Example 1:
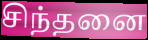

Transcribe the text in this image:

சிந்தனை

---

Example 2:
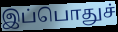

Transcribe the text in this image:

இப்பொதுச்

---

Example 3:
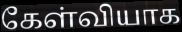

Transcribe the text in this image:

கேள்வியாக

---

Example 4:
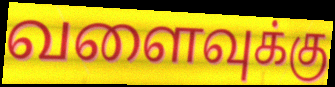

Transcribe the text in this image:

வளைவுக்கு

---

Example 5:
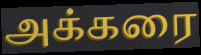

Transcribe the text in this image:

அக்கரை